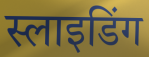
स्लाइडिंग